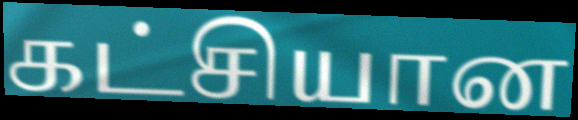
கட்சியான